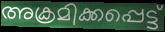
അക്രമിക്കപ്പെട്ട്